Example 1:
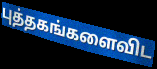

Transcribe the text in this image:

புத்தகங்களைவிட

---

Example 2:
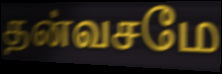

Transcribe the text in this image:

தன்வசமே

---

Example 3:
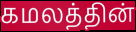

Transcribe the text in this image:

கமலத்தின்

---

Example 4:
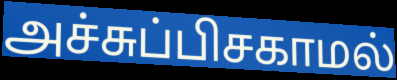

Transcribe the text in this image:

அச்சுப்பிசகாமல்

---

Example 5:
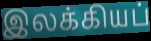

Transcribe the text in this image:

இலக்கியப்